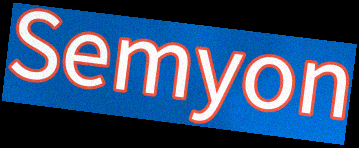
Semyon